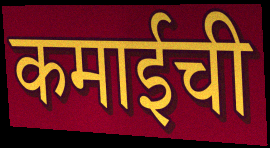
कमाईची